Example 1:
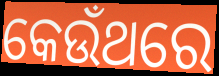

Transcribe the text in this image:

କେଉଁଥରେ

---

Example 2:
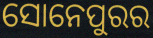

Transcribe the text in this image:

ସୋନେପୁରର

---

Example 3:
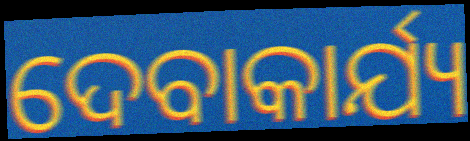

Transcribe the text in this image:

ଦେବାକାର୍ଯ୍ୟ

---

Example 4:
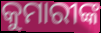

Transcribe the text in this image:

କୁମାରୀଙ୍କ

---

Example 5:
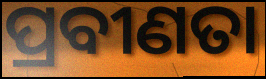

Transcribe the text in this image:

ପ୍ରବୀଣତା